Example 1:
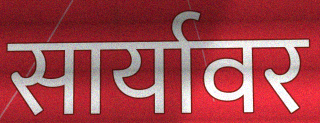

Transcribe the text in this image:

सार्यावर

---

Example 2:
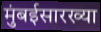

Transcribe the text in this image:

मुंबईसारख्या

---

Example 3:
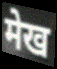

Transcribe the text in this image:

मेख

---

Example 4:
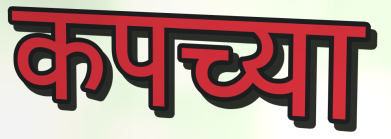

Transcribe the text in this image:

कपच्या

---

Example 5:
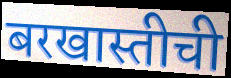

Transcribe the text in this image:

बरखास्तीची